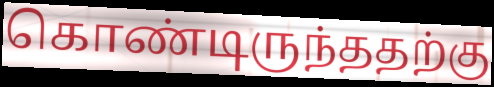
கொண்டிருந்ததற்கு